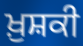
ਖ਼ੁਸ਼ਕੀ